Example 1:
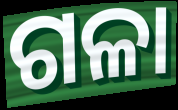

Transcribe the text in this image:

ଗଳା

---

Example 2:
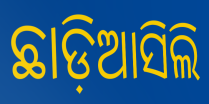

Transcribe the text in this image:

ଛାଡ଼ିଆସିଲି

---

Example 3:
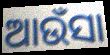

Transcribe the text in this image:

ଆଉଁସା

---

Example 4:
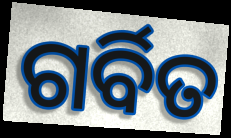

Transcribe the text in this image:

ଗର୍ବିତ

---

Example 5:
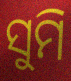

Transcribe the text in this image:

ସୁମି